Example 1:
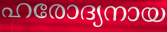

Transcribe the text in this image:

ഹരോദ്യനായ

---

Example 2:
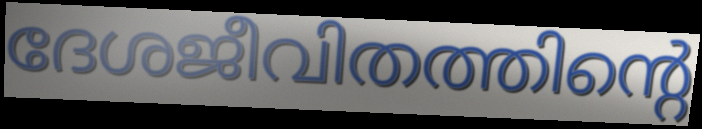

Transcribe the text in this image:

ദേശജീവിതത്തിന്റെ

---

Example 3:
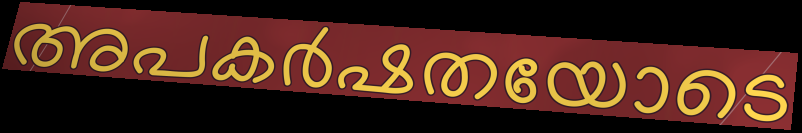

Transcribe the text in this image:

അപകർഷതയോടെ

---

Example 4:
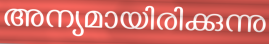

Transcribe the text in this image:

അന്യമായിരിക്കുന്നു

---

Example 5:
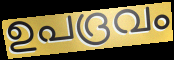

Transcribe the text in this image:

ഉപദ്രവം